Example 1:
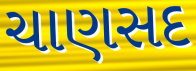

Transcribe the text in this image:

ચાણસદ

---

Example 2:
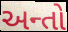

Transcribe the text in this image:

અન્તો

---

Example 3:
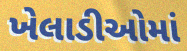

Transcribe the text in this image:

ખેલાડીઓમાં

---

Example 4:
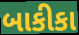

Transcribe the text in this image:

બાકીકા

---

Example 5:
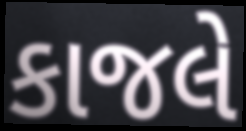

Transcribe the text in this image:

કાજલે